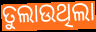
ତୁଲାଉଥିଲା